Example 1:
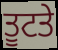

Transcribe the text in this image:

ਤੂਟਤੇ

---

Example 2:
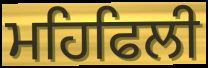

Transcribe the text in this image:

ਮਹਿਫਿਲੀ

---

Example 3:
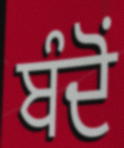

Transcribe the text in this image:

ਬੰਦੋਂ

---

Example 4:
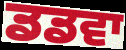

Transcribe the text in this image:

ਡਡਵਾ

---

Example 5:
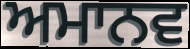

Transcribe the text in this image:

ਅਮਾਨਵ